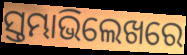
ସ୍ତମ୍ଭାଭିଲେଖରେ